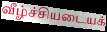
வீழ்ச்சியடையக்